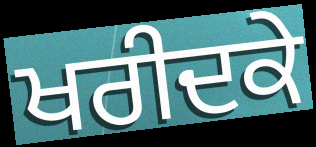
ਖਰੀਦਕੇ